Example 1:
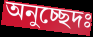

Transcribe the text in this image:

অনুচ্ছেদঃ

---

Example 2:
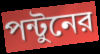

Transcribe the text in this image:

পন্টুনের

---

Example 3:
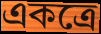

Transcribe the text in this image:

একত্রে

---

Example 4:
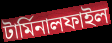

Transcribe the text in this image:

টার্মিনালফাইল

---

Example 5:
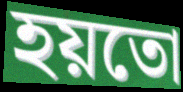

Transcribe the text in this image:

হয়তো